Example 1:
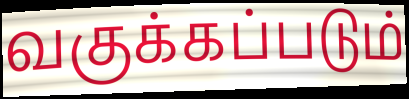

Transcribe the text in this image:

வகுக்கப்படும்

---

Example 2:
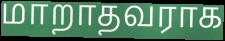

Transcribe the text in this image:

மாறாதவராக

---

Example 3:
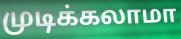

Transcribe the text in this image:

முடிக்கலாமா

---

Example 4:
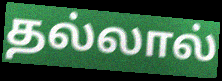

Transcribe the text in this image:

தல்லால்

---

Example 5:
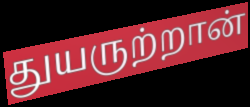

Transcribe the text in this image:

துயருற்றான்